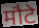
मौटे